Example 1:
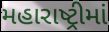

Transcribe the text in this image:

મહારાષ્ટ્રીમાં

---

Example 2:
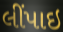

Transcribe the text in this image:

લીંપાઇ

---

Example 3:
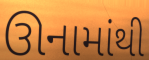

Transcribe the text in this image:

ઊનામાંથી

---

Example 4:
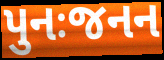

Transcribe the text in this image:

પુનઃજનન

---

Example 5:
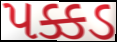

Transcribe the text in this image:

પક્કડ